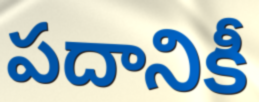
పదానికీ